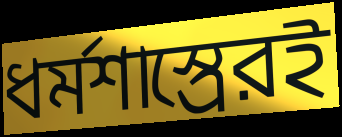
ধর্মশাস্ত্রেরই